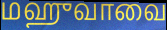
மஹுவாவை